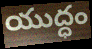
యుద్ధం